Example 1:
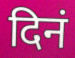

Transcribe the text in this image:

दिनं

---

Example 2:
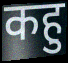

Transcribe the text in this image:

कहु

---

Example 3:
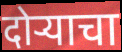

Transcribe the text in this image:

दोर्‍याचा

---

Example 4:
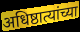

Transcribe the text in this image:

अधिष्ठात्यांच्या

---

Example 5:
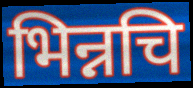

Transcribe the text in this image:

भिन्नचि